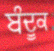
ਬੰਦੂਕ